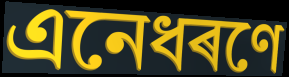
এনেধৰণে